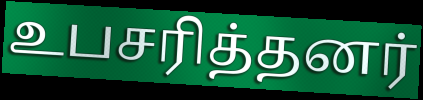
உபசரித்தனர்